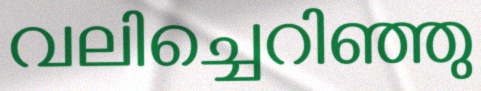
വലിച്ചെറിഞ്ഞു